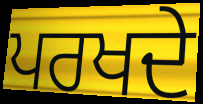
ਪਰਖਦੇ